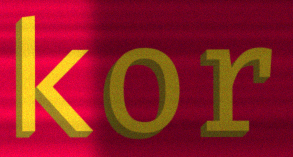
kor